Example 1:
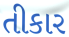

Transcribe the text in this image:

તીકાર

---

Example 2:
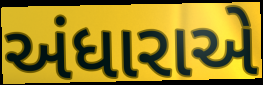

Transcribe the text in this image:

અંધારાએ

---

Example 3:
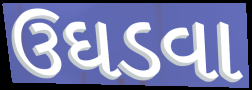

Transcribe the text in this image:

ઉઘડવા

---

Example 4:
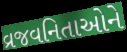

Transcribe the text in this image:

વ્રજવનિતાઓને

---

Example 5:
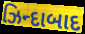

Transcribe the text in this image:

ઝિન્દાબાદ